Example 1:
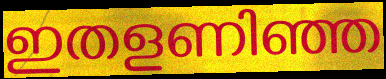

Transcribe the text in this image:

ഇതളണിഞ്ഞ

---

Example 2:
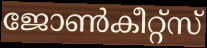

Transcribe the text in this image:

ജോൺകീറ്റ്സ്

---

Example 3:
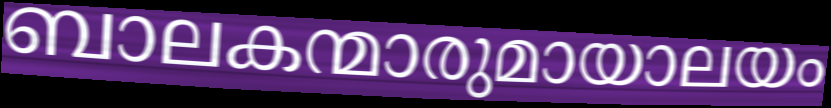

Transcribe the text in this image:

ബാലകന്മാരുമായാലയം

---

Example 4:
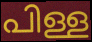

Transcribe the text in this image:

പിള്ള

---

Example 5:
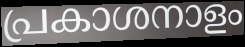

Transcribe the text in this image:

പ്രകാശനാളം